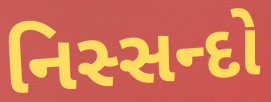
નિસ્સન્દો